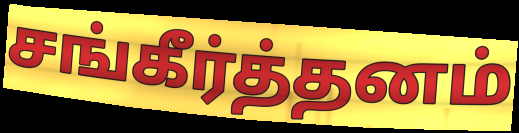
சங்கீர்த்தனம்